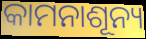
କାମନାଶୂନ୍ୟ